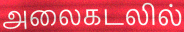
அலைகடலில்